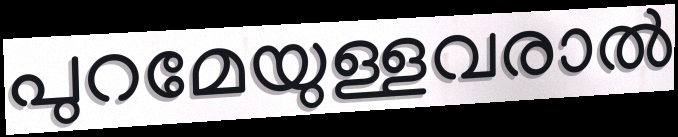
പുറമേയുള്ളവരാൽ